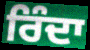
ਰਿੰਦਾ